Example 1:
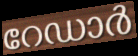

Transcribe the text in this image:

റേഡാർ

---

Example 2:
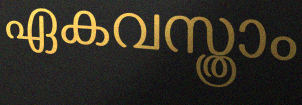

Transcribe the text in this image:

ഏകവസ്ത്രാം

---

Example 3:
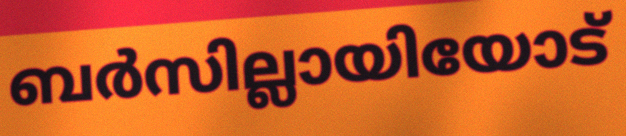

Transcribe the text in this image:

ബർസില്ലായിയോട്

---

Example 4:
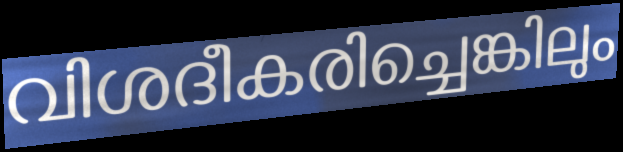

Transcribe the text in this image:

വിശദീകരിച്ചെങ്കിലും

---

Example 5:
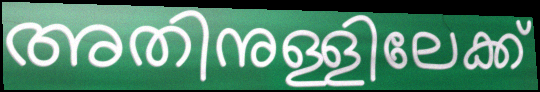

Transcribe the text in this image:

അതിനുള്ളിലേക്ക്